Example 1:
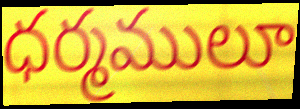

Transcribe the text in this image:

ధర్మములూ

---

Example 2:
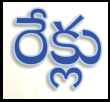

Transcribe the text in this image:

రేక్లు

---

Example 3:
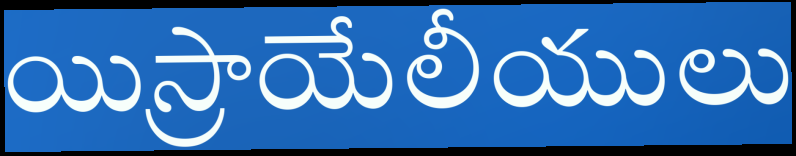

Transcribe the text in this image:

యిస్రాయేలీయులు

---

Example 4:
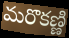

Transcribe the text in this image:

మరొకణ్ణి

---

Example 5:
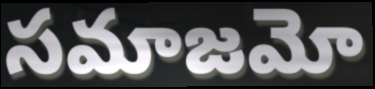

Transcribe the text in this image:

సమాజమో